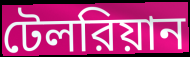
টেলরিয়ান